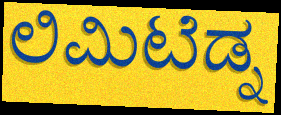
ಲಿಮಿಟೆಡ್ನ